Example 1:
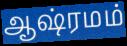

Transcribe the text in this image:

ஆஷ்ரமம்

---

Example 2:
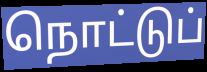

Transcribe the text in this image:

நொட்டுப்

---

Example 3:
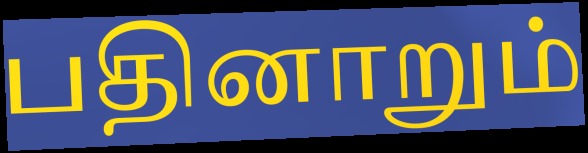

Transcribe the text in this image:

பதினாறும்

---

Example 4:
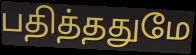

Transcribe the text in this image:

பதித்ததுமே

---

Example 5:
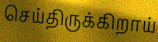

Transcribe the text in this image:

செய்திருக்கிறாய்